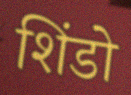
शिंडो